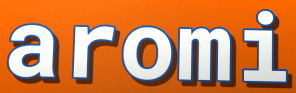
aromi